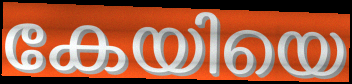
കേയിയെ